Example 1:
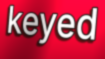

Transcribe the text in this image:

keyed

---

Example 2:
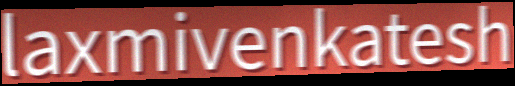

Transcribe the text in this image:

laxmivenkatesh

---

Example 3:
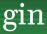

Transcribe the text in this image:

gin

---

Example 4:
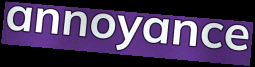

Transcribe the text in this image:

annoyance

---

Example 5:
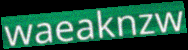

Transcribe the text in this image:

waeaknzw